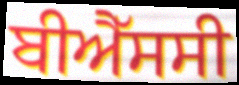
ਬੀਐੱਸਸੀ